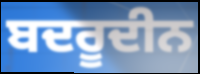
ਬਦਰੂਦੀਨ